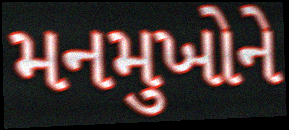
મનમુખોને